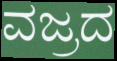
ವಜ್ರದ